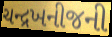
ચન્દ્રખનીજની